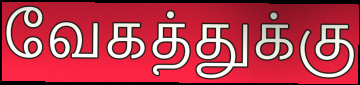
வேகத்துக்கு